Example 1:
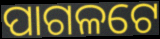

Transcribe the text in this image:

ପାଗଳଟେ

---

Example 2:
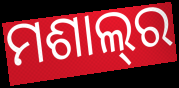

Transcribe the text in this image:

ମଶାଲ୍‌ର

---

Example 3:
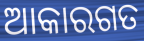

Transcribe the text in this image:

ଆକାରଗତ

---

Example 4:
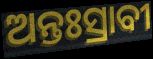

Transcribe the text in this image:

ଅନ୍ତଃସ୍ରାବୀ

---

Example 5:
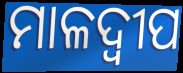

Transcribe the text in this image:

ମାଳଦ୍ବୀପ